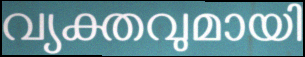
വ്യക്തവുമായി